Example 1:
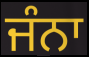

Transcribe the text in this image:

ਜੰਨਾ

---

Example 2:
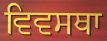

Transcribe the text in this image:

ਵਿਵਸਥਾ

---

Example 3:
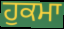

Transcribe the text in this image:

ਹੁਕਮਾ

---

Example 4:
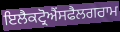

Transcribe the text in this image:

ਇਲੈਕਟ੍ਰੋਐਂਸਫੈਲਗਰਾਮ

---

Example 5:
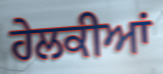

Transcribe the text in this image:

ਹੇਲਕੀਆਂ